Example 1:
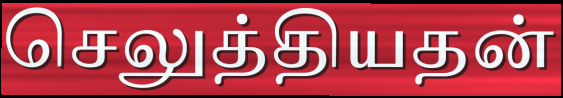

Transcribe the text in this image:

செலுத்தியதன்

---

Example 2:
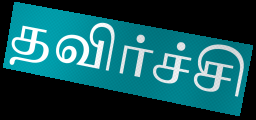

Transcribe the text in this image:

தவிர்ச்சி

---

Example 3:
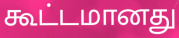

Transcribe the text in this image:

கூட்டமானது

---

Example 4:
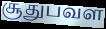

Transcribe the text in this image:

சூதுபவள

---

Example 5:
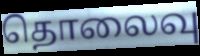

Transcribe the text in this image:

தொலைவு